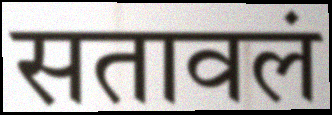
सतावलं